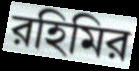
রহিমির